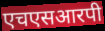
एचएसआरपी